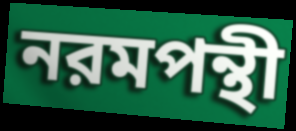
নরমপন্থী